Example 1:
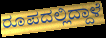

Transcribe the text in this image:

ರೂಪದಲ್ಲಿದ್ದಾಳೆ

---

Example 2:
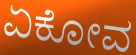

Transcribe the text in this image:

ಏಕೋವ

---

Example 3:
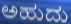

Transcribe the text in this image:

ಅಹುದು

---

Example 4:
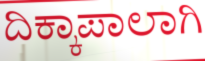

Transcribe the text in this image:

ದಿಕ್ಕಾಪಾಲಾಗಿ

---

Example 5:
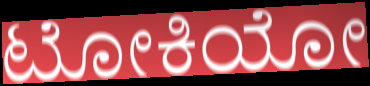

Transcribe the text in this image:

ಟೋಕಿಯೋ